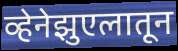
व्हेनेझुएलातून